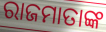
ରାଜମାତାଙ୍କ